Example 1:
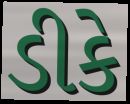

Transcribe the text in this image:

ડીકે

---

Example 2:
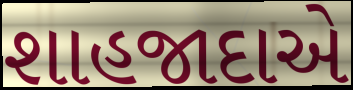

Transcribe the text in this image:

શાહજાદાએ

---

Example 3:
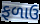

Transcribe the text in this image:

ફળાઉ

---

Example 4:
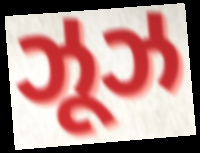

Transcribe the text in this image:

ઝૂઝ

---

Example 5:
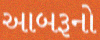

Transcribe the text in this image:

આબરૂનો